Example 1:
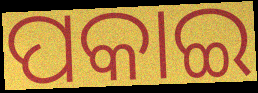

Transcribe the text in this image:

ପକାଇ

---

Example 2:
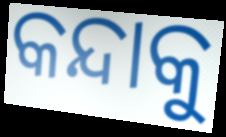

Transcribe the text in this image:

କନ୍ଦାକୁ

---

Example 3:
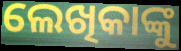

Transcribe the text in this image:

ଲେଖିକାଙ୍କୁ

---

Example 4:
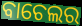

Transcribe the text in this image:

ବାଚେଲର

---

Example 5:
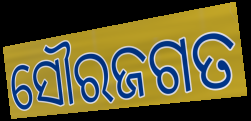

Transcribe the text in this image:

ସୌରଜଗତ